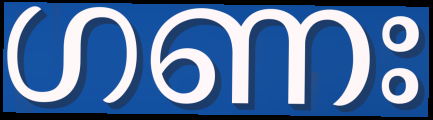
ഗണഃ